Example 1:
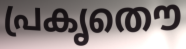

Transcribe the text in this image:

പ്രകൃതൌ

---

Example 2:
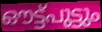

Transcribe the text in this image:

ഔട്ട്പുട്ടും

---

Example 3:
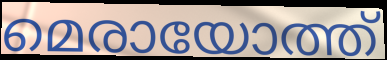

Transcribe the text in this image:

മെരായോത്ത്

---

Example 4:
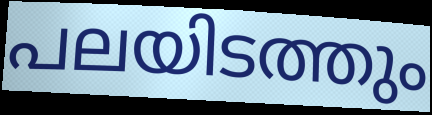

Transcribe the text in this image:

പലയിടത്തും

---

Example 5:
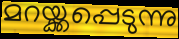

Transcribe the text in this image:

മറയ്ക്കപ്പെടുന്നു